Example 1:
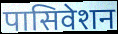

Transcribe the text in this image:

पासिवेशन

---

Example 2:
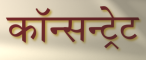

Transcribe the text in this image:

कॉन्सन्ट्रेट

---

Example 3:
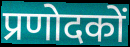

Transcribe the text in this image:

प्रणोदकों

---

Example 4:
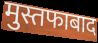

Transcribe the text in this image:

मुस्तफाबाद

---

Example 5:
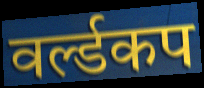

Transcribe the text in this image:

वर्ल्‍डकप